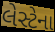
લેસ્ટેના